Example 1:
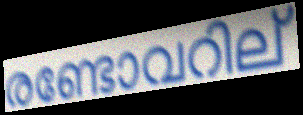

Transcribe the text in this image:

രണ്ടോവറില്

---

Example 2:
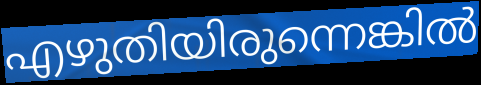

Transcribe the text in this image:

എഴുതിയിരുന്നെങ്കിൽ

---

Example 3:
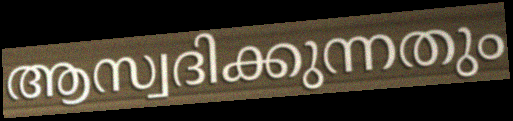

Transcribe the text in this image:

ആസ്വദിക്കുന്നതും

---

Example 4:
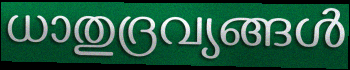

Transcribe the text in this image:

ധാതുദ്രവ്യങ്ങൾ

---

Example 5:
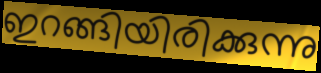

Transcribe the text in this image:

ഇറങ്ങിയിരിക്കുന്നു